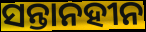
ସନ୍ତାନହୀନ